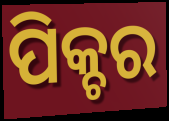
ପିକ୍ଚର